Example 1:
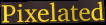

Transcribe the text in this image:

Pixelated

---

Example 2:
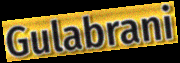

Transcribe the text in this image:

Gulabrani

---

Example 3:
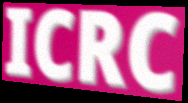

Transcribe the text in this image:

ICRC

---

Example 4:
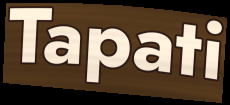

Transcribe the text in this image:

Tapati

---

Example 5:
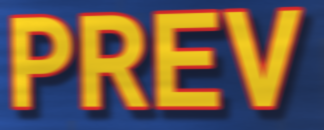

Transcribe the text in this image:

PREV